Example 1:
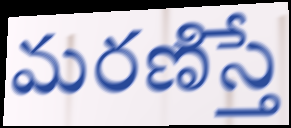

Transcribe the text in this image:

మరణిస్తే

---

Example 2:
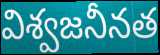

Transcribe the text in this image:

విశ్వజనీనత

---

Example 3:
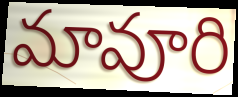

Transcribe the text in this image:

మావూరి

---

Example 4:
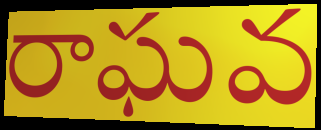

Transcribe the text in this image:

రాఘవ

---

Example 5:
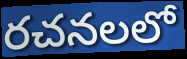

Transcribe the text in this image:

రచనలలో